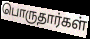
பொருதார்கள்